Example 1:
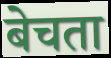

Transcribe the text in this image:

बेचता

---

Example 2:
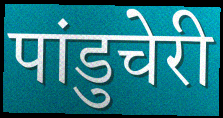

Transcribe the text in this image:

पांडुचेरी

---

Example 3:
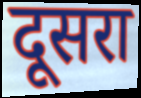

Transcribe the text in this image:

दूसरा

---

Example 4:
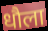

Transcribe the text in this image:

धौला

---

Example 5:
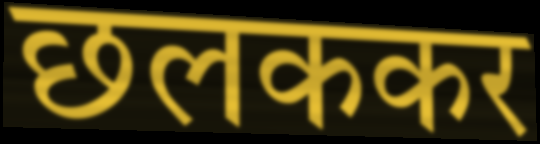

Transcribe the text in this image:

छलककर